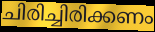
ചിരിച്ചിരിക്കണം